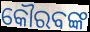
କୌରବଙ୍କ